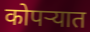
कोपऱ्यात